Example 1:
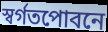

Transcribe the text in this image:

স্বর্গতপোবনে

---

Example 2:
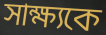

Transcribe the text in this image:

সাক্ষ্যকে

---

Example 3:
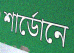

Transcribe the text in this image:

শার্ডোনে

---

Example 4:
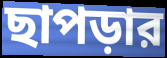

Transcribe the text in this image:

ছাপড়ার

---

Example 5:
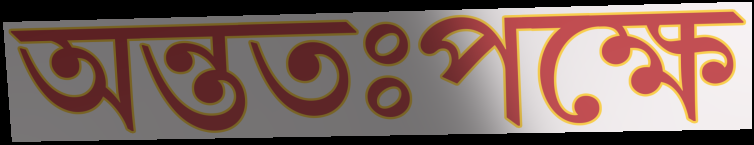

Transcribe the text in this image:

অন্ততঃপক্ষে